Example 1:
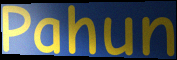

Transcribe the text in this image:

Pahun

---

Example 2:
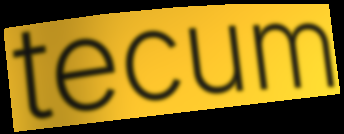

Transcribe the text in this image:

tecum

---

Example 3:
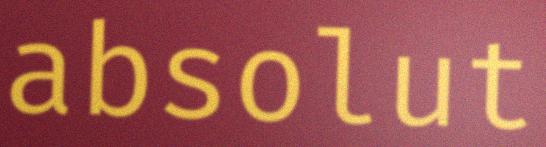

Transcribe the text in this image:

absolut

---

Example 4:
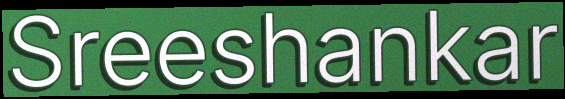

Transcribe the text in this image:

Sreeshankar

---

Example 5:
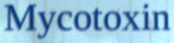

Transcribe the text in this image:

Mycotoxin